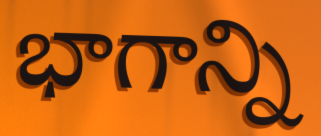
భాగాన్ని